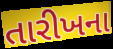
તારીખના